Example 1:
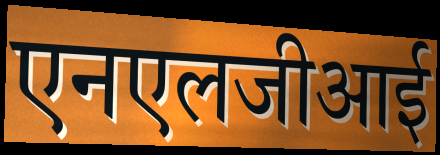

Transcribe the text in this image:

एनएलजीआई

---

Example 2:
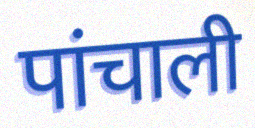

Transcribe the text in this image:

पांचाली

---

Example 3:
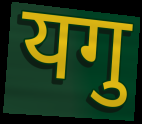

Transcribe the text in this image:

यगु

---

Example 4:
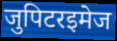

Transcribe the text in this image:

जुपिटरइमेज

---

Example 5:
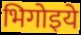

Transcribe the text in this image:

भिगोइये